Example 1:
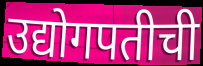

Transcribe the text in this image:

उद्योगपतीची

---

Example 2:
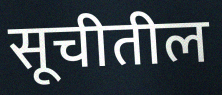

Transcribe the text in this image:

सूचीतील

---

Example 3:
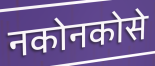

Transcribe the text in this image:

नकोनकोसे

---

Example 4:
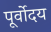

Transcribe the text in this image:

पूर्वोदय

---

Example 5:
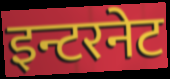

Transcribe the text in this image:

इन्टरनेट